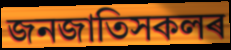
জনজাতিসকলৰ